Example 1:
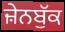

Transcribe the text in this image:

ਜ਼ੇਨਬੁੱਕ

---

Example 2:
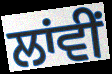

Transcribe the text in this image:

ਲਾਂਵੀਂ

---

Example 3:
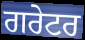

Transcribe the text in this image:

ਗਰੇਟਰ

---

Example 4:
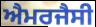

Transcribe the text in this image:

ਐਮਰਜੈਸੀ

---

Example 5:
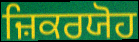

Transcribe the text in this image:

ਜ਼ਿਕਰਯੋਹ